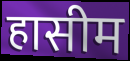
हासीम